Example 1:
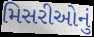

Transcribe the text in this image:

મિસરીઓનું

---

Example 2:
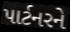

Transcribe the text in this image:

પાર્ટનરને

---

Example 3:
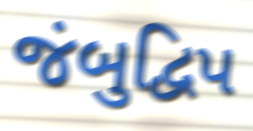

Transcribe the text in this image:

જંબુદ્વિપ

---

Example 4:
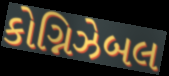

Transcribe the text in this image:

કોગ્નિઝેબલ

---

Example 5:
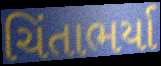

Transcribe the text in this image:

ચિંતાભર્યા